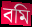
বমি